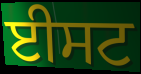
ਈਸਟ